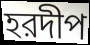
হরদীপ